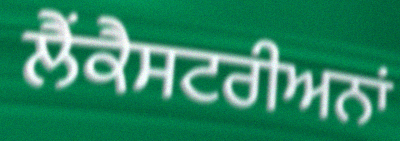
ਲੈਂਕੈਸਟਰੀਅਨਾਂ